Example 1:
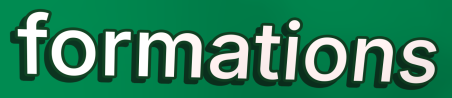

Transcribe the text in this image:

formations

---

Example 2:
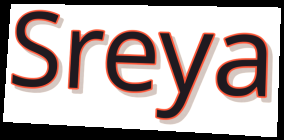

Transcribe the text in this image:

Sreya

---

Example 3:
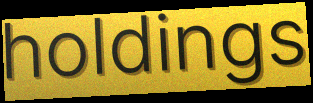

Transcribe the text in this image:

holdings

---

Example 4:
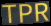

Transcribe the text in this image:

TPR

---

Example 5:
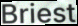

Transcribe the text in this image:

Briest